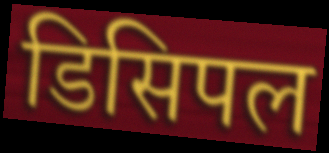
डिसिपल